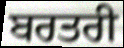
ਬਰਤਰੀ